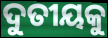
ଦୁତୀୟକୁ